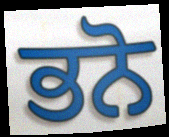
ਭਨੋ